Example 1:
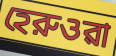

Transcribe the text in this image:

হেৰুওৱা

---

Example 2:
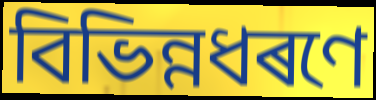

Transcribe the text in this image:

বিভিন্নধৰণে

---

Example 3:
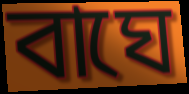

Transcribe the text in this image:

বাঘে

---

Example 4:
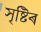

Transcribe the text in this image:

সৃষ্টিৰ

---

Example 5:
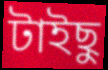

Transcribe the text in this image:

টাইছু